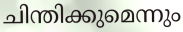
ചിന്തിക്കുമെന്നും